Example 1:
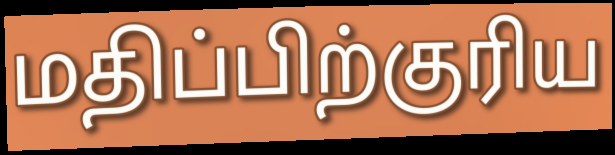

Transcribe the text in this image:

மதிப்பிற்குரிய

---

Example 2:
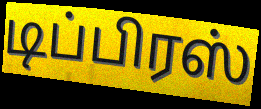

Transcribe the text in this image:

டிப்பிரஸ்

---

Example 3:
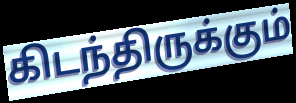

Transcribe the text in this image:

கிடந்திருக்கும்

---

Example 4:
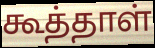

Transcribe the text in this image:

கூத்தாள்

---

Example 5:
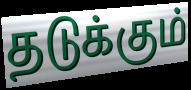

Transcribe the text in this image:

தடுக்கும்